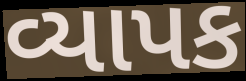
વ્યાપક